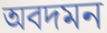
অবদমন